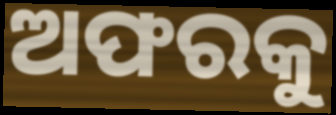
ଅଫରକୁ